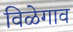
विळेगाव